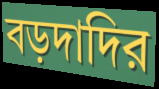
বড়দাদির